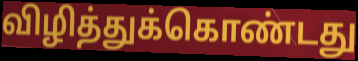
விழித்துக்கொண்டது